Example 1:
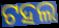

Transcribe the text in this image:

ଟହଲ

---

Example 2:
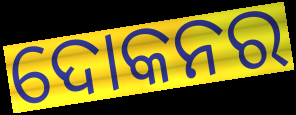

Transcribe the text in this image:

ଦୋକନର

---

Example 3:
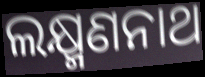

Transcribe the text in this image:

ଲକ୍ଷ୍ମଣନାଥ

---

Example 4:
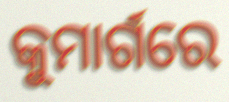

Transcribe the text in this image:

କୁମାର୍ଗରେ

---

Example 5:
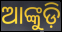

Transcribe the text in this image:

ଆଙ୍କୁଡ଼ି